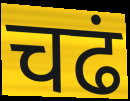
चढं